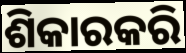
ଶିକାରକରି